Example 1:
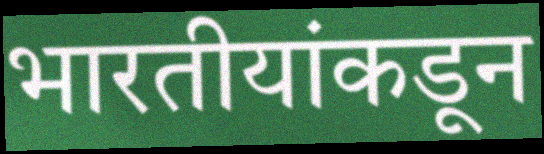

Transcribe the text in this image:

भारतीयांकडून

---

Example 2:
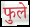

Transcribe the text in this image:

फुले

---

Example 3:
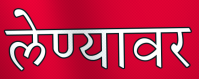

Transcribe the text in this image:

लेण्यावर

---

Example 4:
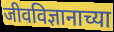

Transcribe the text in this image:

जीवविज्ञानाच्या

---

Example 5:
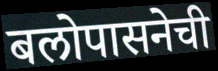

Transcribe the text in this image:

बलोपासनेची